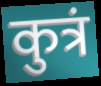
कुत्रं